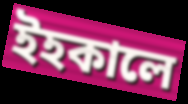
ইহকালে